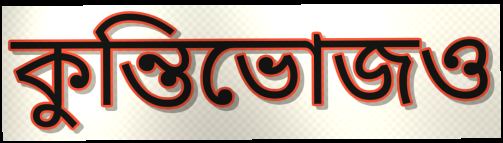
কুন্তিভোজও